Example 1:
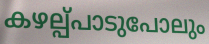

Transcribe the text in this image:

കഴല്പ്പാടുപോലും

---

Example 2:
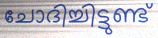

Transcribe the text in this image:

ചോദിച്ചിട്ടുണ്ട്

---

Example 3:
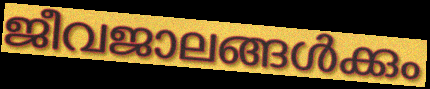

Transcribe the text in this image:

ജീവജാലങ്ങൾക്കും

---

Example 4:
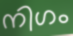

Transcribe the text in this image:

നിഗം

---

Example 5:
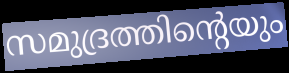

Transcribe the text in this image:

സമുദ്രത്തിന്റെയും